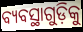
ବ୍ୟବସ୍ଥାଗୁଡ଼ିକୁ